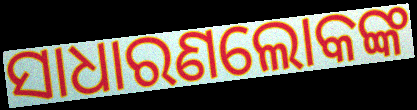
ସାଧାରଣଲୋକଙ୍କ